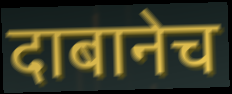
दाबानेच